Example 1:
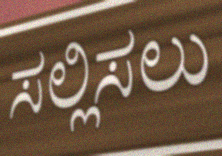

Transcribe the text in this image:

ಸಲ್ಲಿಸಲು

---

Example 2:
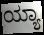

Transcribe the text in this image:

ಯ್ಯಾ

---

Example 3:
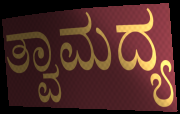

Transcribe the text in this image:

ತ್ವಾಮದ್ಯ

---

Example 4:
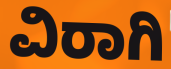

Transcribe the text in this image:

ವಿರಾಗಿ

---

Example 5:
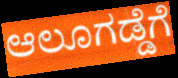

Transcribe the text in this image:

ಆಲೂಗಡ್ಡೆಗೆ